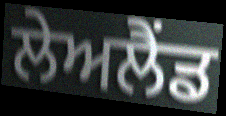
ਲੇਅਲੈਂਡ